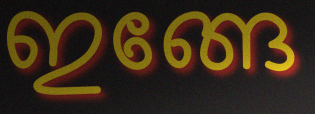
ഇങ്ങേ